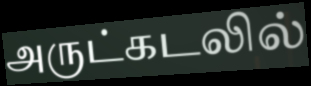
அருட்கடலில்